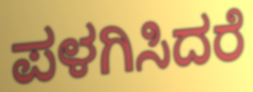
ಪಳಗಿಸಿದರೆ